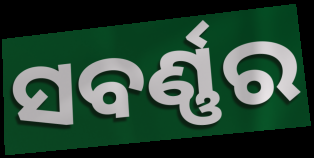
ସବର୍ଣ୍ଣର